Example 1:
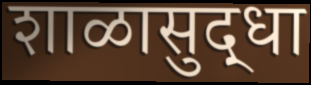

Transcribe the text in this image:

शाळासुद्धा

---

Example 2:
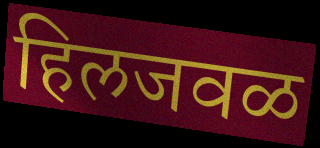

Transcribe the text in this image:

हिलजवळ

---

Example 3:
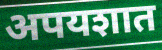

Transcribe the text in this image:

अपयशात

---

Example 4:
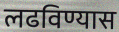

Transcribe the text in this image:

लढविण्यास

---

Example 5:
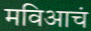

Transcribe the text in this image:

मविआचं